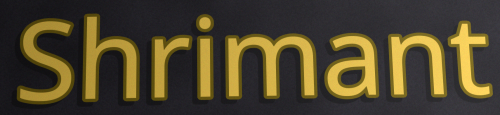
Shrimant